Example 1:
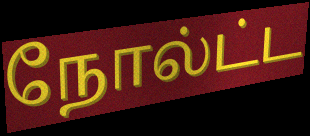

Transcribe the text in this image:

நோல்ட்ட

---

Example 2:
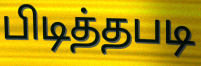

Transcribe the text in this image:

பிடித்தபடி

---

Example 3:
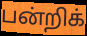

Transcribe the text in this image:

பன்றிக்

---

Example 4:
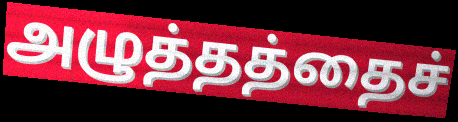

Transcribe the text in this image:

அழுத்தத்தைச்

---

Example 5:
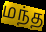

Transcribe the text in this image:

மந்த